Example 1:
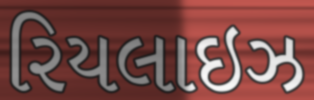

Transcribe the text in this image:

રિયલાઇઝ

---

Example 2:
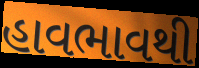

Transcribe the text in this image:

હાવભાવથી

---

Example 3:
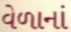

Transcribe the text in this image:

વેળાનાં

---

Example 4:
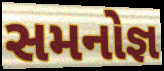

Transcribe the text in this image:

સમનોજ્ઞ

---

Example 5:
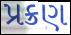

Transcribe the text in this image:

પ્રક્રણ